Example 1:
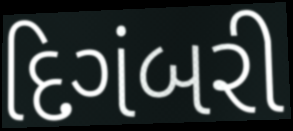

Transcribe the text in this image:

દિગંબરી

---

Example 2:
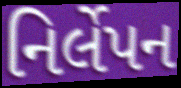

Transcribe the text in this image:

નિર્લેપન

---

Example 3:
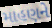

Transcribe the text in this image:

માહણને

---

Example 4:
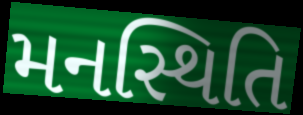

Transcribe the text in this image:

મનસ્થિતિ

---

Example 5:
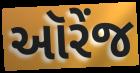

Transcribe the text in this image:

ઑરેંજ